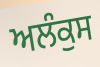
ਅਲੰਕੁਸ